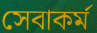
সেবাকর্ম